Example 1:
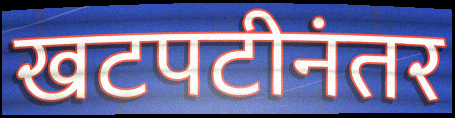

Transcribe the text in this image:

खटपटीनंतर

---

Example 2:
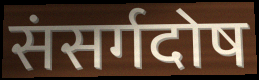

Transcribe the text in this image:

संसर्गदोष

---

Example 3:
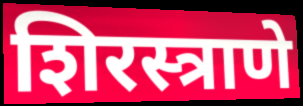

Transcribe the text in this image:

शिरस्त्राणे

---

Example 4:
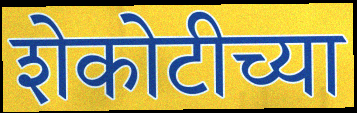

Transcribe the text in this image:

शेकोटीच्या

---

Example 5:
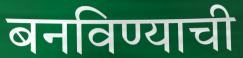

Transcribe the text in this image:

बनविण्याची